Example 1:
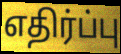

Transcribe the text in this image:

எதிர்ப்பு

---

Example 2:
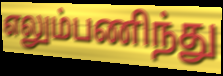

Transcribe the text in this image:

எலும்பணிந்து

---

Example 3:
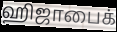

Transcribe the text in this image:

ஹிஜாபைக்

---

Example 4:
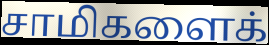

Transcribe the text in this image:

சாமிகளைக்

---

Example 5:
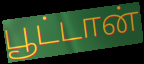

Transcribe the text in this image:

பூட்டான்